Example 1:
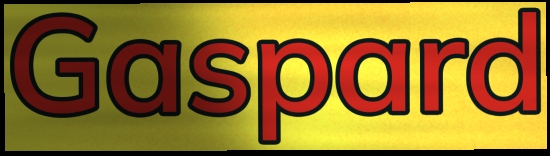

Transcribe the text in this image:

Gaspard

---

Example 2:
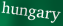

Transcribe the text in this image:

hungary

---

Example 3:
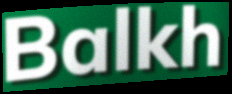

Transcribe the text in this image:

Balkh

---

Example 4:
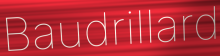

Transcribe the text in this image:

Baudrillard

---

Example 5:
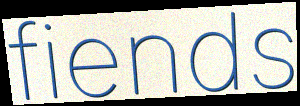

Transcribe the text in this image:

fiends